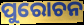
ପୁରୋଚନ